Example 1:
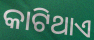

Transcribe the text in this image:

କାଟିଥାଏ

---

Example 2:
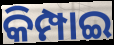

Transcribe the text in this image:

କିମ୍ପାଇ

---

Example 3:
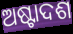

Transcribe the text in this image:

ଅଷ୍ଟାଦଶ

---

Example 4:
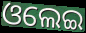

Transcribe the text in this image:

ଓଲେଇ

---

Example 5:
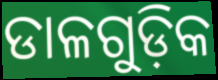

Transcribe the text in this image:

ଡାଳଗୁଡ଼ିକ